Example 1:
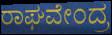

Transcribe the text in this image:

ರಾಘವೇಂದ್ರ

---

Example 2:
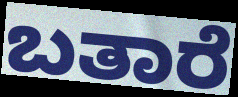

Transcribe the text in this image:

ಬತಾರೆ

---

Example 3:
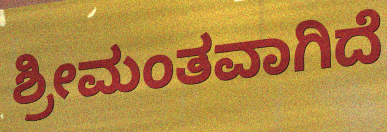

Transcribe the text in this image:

ಶ್ರೀಮಂತವಾಗಿದೆ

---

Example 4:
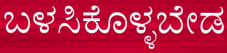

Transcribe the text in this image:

ಬಳಸಿಕೊಳ್ಳಬೇಡ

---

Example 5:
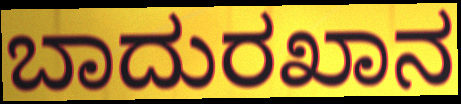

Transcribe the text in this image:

ಬಾದುರಖಾನ